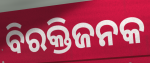
ବିରକ୍ତିଜନକ